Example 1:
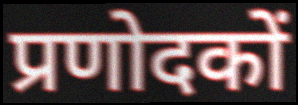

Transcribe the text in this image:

प्रणोदकों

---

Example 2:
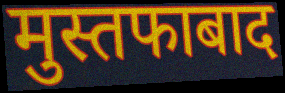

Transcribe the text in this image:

मुस्तफाबाद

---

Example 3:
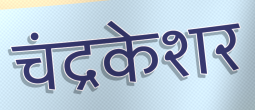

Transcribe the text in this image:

चंद्रकेशर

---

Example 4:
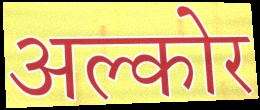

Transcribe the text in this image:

अल्कोर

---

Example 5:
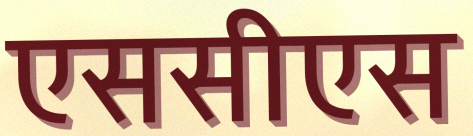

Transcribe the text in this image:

एससीएस